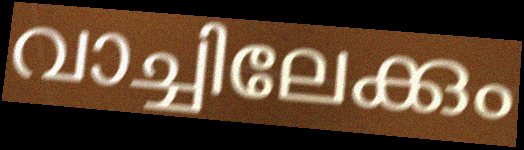
വാച്ചിലേക്കും